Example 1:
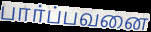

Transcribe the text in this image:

பார்ப்பவனை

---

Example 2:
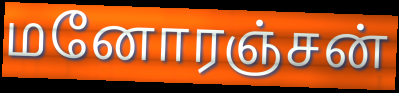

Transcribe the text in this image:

மனோரஞ்சன்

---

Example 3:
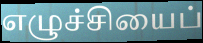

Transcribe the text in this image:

எழுச்சியைப்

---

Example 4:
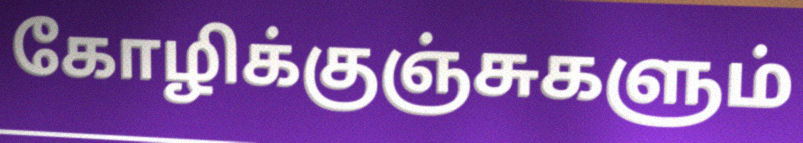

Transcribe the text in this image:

கோழிக்குஞ்சுகளும்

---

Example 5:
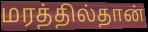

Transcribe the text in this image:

மரத்தில்தான்